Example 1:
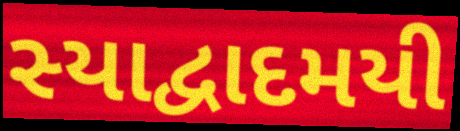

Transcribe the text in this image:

સ્યાદ્વાદમયી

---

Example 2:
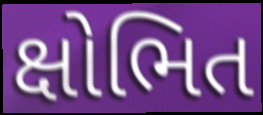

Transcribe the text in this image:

ક્ષોભિત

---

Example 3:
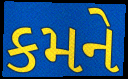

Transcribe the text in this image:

કમને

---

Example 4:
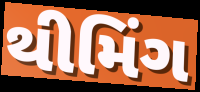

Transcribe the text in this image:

થીમિંગ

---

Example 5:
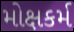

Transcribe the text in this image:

મોક્ષકર્મ